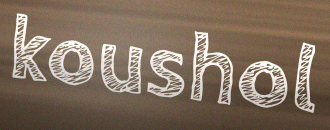
koushol